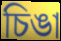
চিঙা